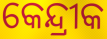
କେନ୍ଦ୍ରୀକ